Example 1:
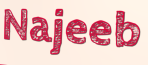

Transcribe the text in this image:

Najeeb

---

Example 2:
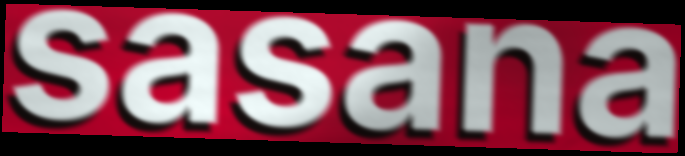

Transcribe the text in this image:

sasana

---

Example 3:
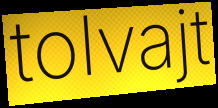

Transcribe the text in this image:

tolvajt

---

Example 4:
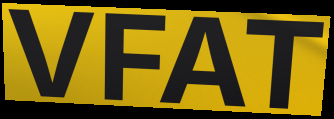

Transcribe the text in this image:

VFAT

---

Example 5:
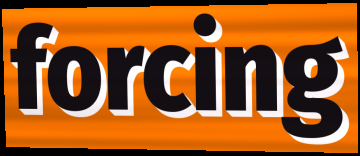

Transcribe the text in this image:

forcing